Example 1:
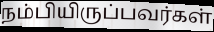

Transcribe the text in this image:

நம்பியிருப்பவர்கள்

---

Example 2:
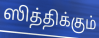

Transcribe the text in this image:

ஸித்திக்கும்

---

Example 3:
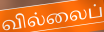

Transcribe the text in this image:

வில்லைப்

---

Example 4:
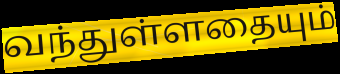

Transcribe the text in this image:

வந்துள்ளதையும்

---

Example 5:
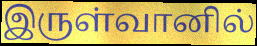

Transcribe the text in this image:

இருள்வானில்